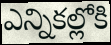
ఎన్నికల్లోకి